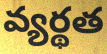
వ్యర్థత